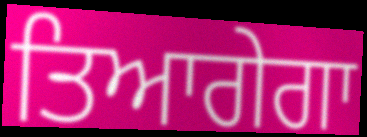
ਤਿਆਗੇਗਾ